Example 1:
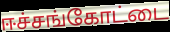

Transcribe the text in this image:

ஈச்சங்கோட்டை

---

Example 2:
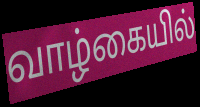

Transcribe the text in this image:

வாழ்கையில்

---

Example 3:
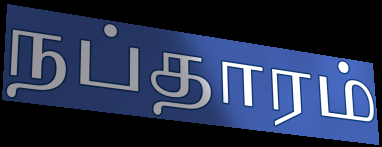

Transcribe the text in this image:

நப்தாரம்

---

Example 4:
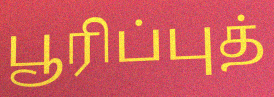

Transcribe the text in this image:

பூரிப்புத்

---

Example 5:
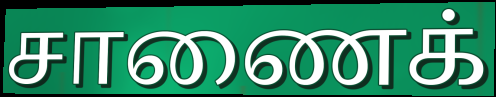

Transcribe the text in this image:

சாணைக்